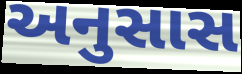
અનુસાસ